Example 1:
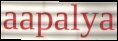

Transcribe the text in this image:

aapalya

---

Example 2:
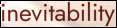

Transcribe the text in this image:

inevitability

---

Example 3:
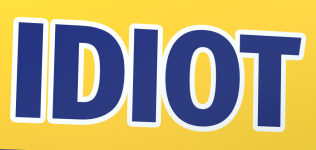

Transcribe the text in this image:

IDIOT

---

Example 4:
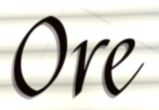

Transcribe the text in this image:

Ore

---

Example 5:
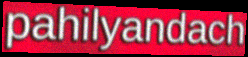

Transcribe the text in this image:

pahilyandach